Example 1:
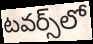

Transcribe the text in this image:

టవర్స్‌లో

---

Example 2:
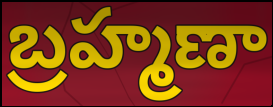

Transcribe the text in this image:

బ్రహ్మణా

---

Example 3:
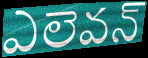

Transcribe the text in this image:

ఎలెవన్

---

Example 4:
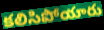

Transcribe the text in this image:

కలిసిపోయారు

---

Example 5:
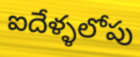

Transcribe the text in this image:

ఐదేళ్ళలోపు